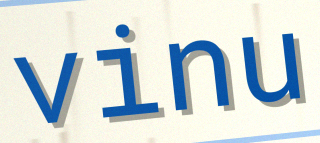
vinu